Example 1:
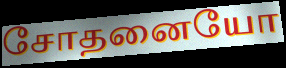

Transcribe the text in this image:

சோதனையோ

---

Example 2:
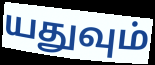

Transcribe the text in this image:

யதுவும்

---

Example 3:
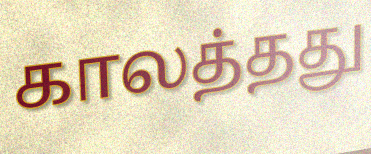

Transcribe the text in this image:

காலத்தது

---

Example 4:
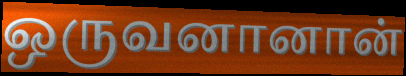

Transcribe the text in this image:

ஒருவனானான்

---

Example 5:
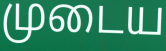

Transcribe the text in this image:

முடைய